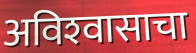
अविश्‍वासाचा